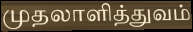
முதலாளித்துவம்